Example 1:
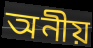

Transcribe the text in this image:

অনীয়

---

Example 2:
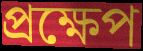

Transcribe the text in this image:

প্ৰক্ষেপ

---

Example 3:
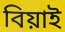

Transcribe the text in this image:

বিয়াই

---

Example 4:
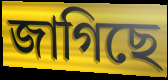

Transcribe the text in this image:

জাগিছে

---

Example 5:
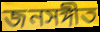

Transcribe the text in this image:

জনসঙ্গীত